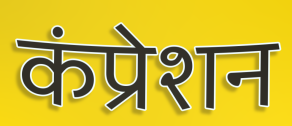
कंप्रेशन